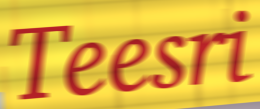
Teesri